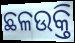
ଛଳଉକ୍ତି